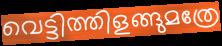
വെട്ടിത്തിളങ്ങുമത്രേ